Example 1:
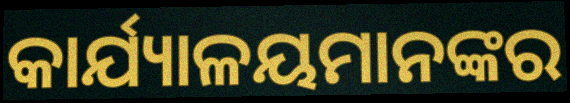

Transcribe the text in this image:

କାର୍ଯ୍ୟାଳୟମାନଙ୍କର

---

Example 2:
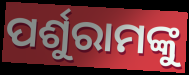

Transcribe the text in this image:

ପର୍ଶୁରାମଙ୍କୁ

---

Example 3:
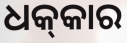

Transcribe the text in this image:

ଧକ୍‍କାର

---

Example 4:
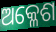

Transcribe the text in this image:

ଅକ୍ଳେଶ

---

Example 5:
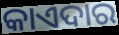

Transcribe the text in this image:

କାଏଦାର